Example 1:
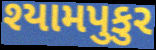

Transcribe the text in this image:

શ્યામપુકુર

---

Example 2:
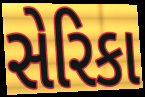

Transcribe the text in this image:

સેરિકા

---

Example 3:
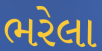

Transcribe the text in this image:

ભરેલા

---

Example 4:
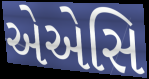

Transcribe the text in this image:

એએસિ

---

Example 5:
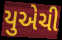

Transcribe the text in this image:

યુએચી